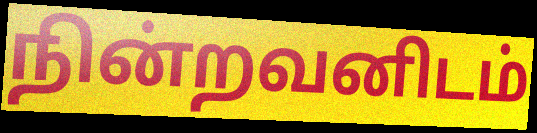
நின்றவனிடம்